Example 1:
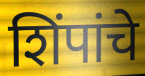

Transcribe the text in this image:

शिंपांचे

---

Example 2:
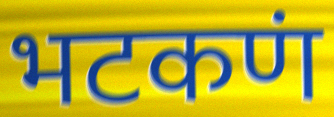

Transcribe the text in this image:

भटकणं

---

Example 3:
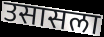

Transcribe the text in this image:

उसासला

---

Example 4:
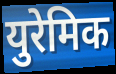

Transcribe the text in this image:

युरेमिक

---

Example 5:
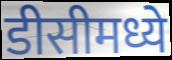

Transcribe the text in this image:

डीसीमध्ये